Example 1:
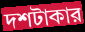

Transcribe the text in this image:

দশটাকার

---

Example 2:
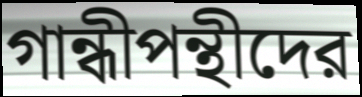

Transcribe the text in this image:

গান্ধীপন্থীদের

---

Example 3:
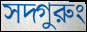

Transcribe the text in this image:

সদ্গুরুং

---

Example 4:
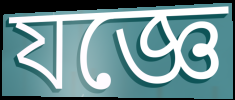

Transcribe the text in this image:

যজ্ঞে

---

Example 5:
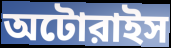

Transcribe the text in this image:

অটোরাইস